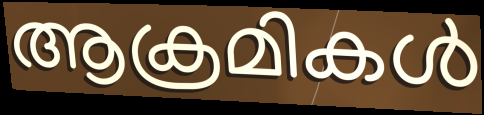
ആക്രമികൾ